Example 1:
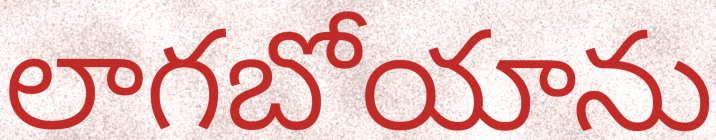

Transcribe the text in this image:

లాగబోయాను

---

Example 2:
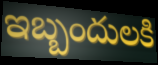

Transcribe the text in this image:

ఇబ్బందులకి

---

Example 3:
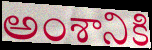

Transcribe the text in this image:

అంశానికి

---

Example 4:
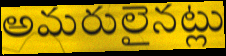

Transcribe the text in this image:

అమరులైనట్లు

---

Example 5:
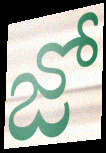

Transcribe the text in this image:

జో